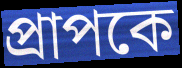
প্রাপকে